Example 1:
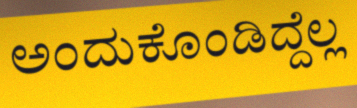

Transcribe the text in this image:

ಅಂದುಕೊಂಡಿದ್ದೆಲ್ಲ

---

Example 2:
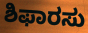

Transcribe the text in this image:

ಶಿಫಾರಸು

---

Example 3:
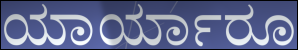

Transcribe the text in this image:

ಯಾರ್ಯಾರೂ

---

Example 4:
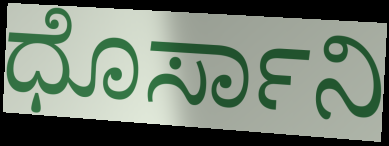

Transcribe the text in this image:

ಧೊರ್ಸಾನಿ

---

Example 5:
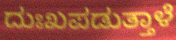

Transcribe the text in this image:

ದುಃಖಪಡುತ್ತಾಳೆ